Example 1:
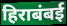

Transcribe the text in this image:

हिराबंबई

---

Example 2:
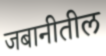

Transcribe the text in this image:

जबानीतील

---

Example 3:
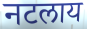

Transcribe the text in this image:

नटलाय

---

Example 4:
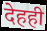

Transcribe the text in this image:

देहही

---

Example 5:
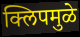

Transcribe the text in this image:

क्लिपमुळे